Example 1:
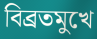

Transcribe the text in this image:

বিব্রতমুখে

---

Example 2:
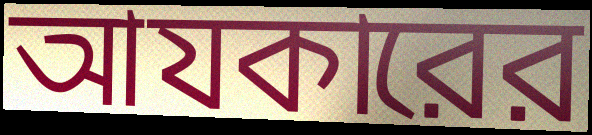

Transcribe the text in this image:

আযকারের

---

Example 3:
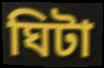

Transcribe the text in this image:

ঘিটা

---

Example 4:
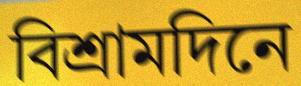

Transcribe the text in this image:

বিশ্রামদিনে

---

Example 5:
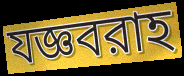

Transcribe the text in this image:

যজ্ঞবরাহ